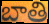
బాతి